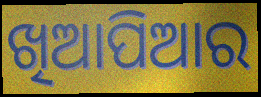
ଖିଆପିଆର